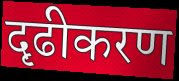
दृढीकरण